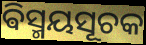
ଵିସ୍ମୟସୂଚକ